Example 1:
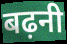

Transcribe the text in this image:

बढ़नी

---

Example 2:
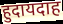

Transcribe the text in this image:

हुदायदाह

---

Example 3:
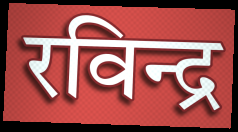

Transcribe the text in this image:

रविन्द्र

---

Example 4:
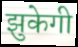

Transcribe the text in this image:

झुकेगी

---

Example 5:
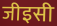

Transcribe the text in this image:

जीइसी